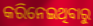
କରିନେଇଥିବାରୁ